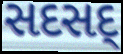
સદસદ્